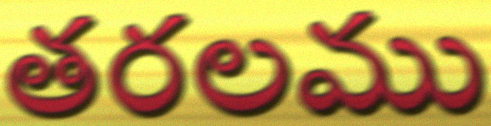
తరలము